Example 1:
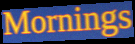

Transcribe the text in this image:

Mornings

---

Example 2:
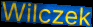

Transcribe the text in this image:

Wilczek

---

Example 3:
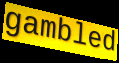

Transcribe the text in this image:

gambled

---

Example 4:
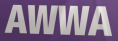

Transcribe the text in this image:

AWWA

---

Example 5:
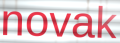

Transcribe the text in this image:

novak